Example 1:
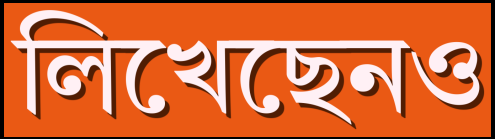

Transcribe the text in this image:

লিখেছেনও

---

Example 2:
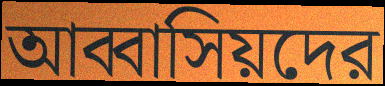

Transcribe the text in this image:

আব্বাসিয়দের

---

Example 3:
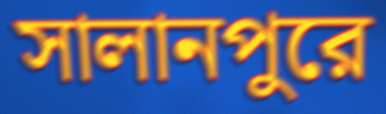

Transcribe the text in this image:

সালানপুরে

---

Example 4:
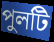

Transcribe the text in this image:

পুলটি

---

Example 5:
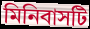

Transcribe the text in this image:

মিনিবাসটি